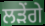
ਲੜੇਂਗੇ